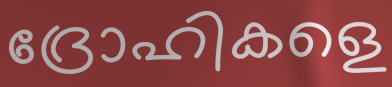
ദ്രോഹികളെ